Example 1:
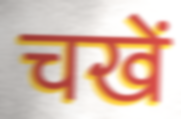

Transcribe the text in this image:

चखें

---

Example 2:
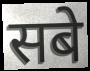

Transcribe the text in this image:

सबे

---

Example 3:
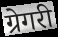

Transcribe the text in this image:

ग्रेगरी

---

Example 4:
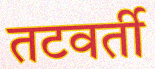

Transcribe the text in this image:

तटवर्ती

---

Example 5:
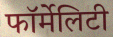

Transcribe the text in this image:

फॉर्मेलिटी